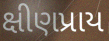
ક્ષીણપ્રાય